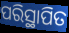
ପରିସ୍ଥାପିତ